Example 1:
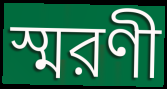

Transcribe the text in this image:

স্মরণী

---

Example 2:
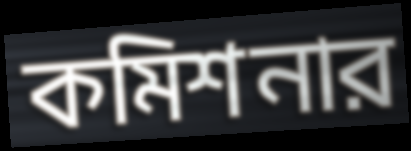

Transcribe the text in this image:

কমিশনার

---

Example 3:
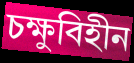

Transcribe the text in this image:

চক্ষুবিহীন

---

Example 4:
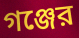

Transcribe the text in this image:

গঞ্জের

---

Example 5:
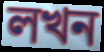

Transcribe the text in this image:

লখন